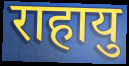
राहायु